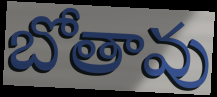
బోతావు